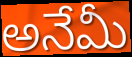
అనేమీ